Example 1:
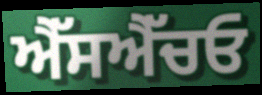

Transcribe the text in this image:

ਐੱਸਐੱਚਓ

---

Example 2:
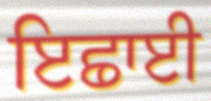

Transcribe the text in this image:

ਇਛਾਈ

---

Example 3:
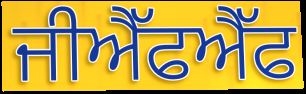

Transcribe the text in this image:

ਜੀਐੱਫਐੱਫ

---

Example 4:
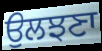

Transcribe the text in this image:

ਉਲਝਣਾ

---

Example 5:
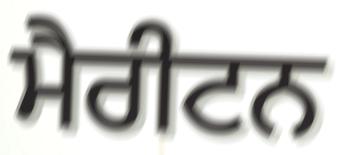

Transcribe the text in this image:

ਮੈਰੀਟਨ